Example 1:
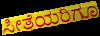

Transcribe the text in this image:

ಸೀತೆಯರಿಗೂ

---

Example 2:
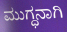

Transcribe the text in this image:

ಮುಗ್ಧನಾಗಿ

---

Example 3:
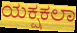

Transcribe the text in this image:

ಯಕ್ಷಕಲಾ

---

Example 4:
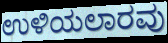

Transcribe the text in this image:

ಉಳಿಯಲಾರವು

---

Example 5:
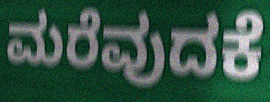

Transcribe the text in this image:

ಮರೆವುದಕೆ